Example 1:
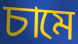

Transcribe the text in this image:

চামে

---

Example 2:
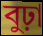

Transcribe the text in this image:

বুঢ়া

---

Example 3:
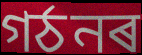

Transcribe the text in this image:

গঠনৰ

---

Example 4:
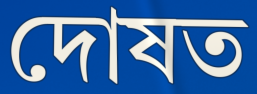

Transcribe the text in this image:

দোষত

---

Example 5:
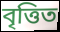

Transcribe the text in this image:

বৃত্তিত